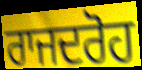
ਰਾਜਦਰੋਹ